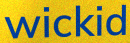
wickid